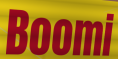
Boomi